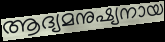
ആദ്യമനുഷ്യനായ